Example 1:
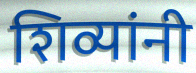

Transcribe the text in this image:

शिव्यांनी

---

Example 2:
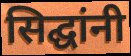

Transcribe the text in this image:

सिद्घांनी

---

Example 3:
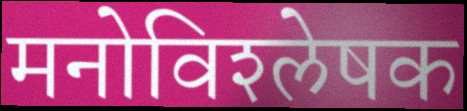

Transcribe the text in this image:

मनोविश्लेषक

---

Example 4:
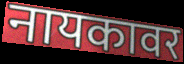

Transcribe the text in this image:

नायकावर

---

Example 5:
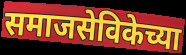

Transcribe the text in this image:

समाजसेविकेच्या